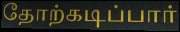
தோற்கடிப்பார்